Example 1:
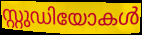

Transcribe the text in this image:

സ്റ്റുഡിയോകൾ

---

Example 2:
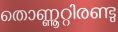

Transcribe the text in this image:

തൊണ്ണൂറ്റിരണ്ടു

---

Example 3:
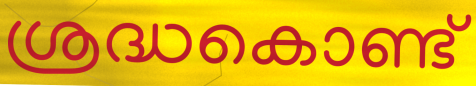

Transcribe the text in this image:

ശ്രദ്ധകൊണ്ട്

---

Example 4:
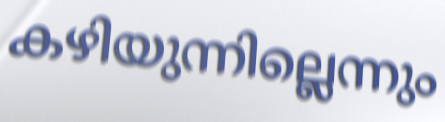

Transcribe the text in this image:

കഴിയുന്നില്ലെന്നും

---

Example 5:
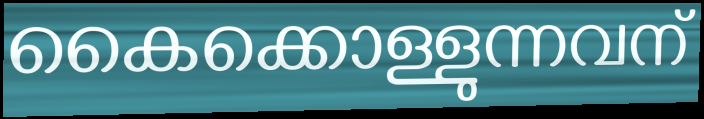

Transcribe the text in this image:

കൈക്കൊള്ളുന്നവന്